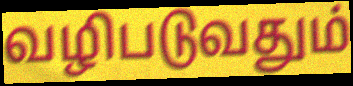
வழிபடுவதும்